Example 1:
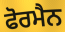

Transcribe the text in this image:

ਫੋਰਮੈਨ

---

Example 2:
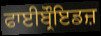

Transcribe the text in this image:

ਫਾਈਬ੍ਰੌਇਡਜ਼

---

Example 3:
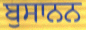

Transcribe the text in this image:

ਬੁਸਾਨਨ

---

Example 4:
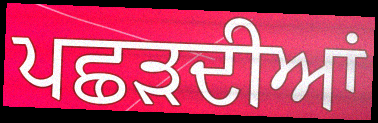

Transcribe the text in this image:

ਪਛੜਦੀਆਂ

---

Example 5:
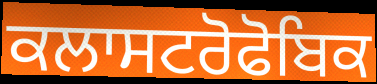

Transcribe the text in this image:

ਕਲਾਸਟਰੋਫੋਬਿਕ